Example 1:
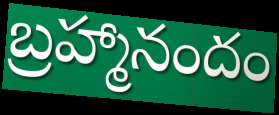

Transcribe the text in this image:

బ్రహ్మానందం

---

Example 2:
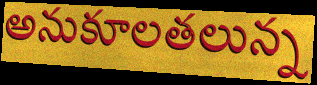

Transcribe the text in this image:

అనుకూలతలున్న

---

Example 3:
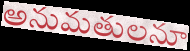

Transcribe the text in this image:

అనుమతులనూ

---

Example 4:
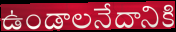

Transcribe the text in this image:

ఉండాలనేదానికి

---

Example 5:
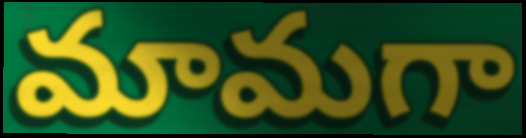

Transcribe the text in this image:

మామగా